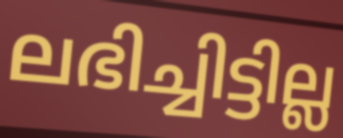
ലഭിച്ചിട്ടില്ല